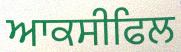
ਆਕਸੀਫਿਲ